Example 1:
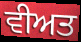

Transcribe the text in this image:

ਵੀਅਤ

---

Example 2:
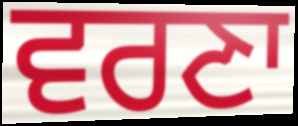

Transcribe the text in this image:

ਵਰਣਾ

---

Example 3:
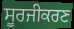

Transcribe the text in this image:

ਸੂਰਜੀਕਰਣ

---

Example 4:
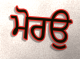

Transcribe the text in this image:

ਮੋਰਉ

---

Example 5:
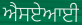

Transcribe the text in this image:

ਐਸਏਆਈ